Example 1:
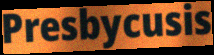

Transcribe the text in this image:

Presbycusis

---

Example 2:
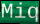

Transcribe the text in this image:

Miq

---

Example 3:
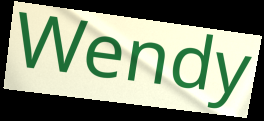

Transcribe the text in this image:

Wendy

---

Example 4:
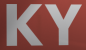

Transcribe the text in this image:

KY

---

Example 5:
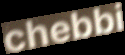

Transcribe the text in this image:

chebbi